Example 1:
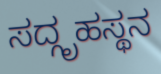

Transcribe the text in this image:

ಸದ್ಗೃಹಸ್ಥನ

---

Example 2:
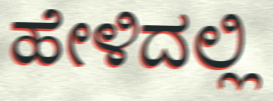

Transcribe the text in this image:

ಹೇಳಿದಲ್ಲಿ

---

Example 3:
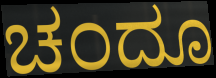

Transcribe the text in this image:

ಚಂದೂ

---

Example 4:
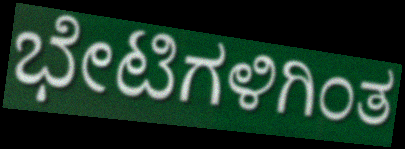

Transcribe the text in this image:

ಭೇಟಿಗಳಿಗಿಂತ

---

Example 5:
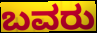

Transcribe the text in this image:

ಬವರು